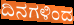
ದಿನಗಳಿಂದ